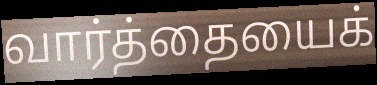
வார்த்தையைக்